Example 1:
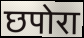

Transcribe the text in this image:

छपोरा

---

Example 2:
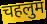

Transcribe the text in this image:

चहलुम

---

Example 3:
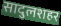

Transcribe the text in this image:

सादुलशहर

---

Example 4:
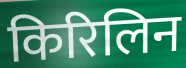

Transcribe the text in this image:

किरिलिन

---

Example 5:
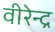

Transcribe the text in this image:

वीरेन्‍द्र